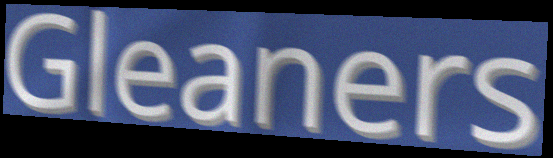
Gleaners